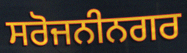
ਸਰੋਜਨੀਨਗਰ